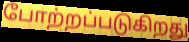
போற்றப்படுகிறது